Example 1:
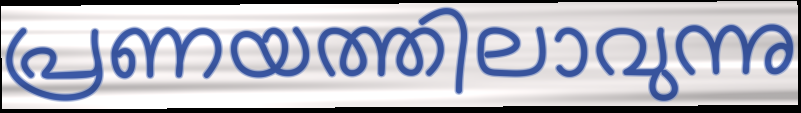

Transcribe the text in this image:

പ്രണയത്തിലാവുന്നു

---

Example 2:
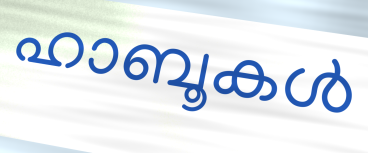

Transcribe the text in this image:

ഹാബൂകൾ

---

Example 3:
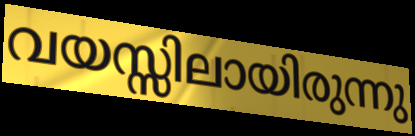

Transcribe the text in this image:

വയസ്സിലായിരുന്നു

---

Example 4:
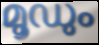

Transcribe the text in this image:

മൂഡും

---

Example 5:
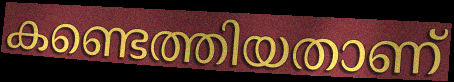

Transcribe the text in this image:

കണ്ടെത്തിയതാണ്